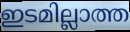
ഇടമില്ലാത്ത